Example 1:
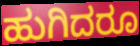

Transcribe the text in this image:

ಹುಗಿದರೂ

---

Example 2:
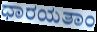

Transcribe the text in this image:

ಧಾರಯತಾಂ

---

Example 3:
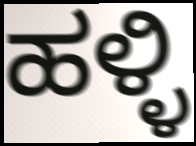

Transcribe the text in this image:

ಹಳ್ಳಿ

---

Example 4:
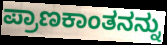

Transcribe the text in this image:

ಪ್ರಾಣಕಾಂತನನ್ನು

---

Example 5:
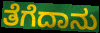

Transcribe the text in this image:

ತೆಗೆದಾನು